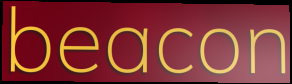
beacon